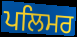
ਪਲਿਮਰ